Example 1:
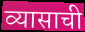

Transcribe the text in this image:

व्यासाची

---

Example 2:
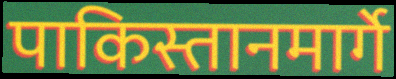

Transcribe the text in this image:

पाकिस्तानमार्गे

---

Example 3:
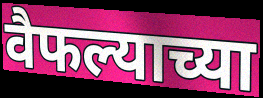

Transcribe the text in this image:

वैफल्याच्या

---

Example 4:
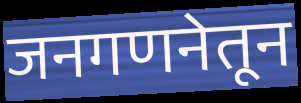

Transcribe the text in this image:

जनगणनेतून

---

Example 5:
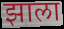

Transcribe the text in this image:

झाला